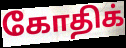
கோதிக்